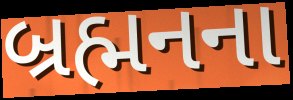
બ્રહ્મનના